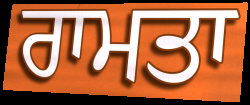
ਰਾਮਤਾ